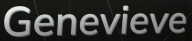
Genevieve